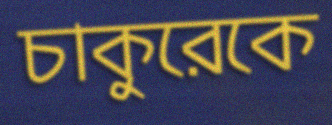
চাকুরেকে